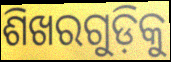
ଶିଖରଗୁଡ଼ିକୁ